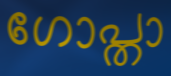
ഗോപ്താ